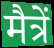
मैत्रें